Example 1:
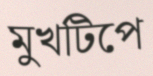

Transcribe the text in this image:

মুখটিপে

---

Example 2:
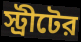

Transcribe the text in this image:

স্ট্রীটের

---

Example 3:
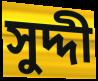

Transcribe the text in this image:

সুদ্দী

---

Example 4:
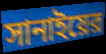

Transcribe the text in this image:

সানাইয়ের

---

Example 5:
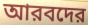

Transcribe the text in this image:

আরবদের